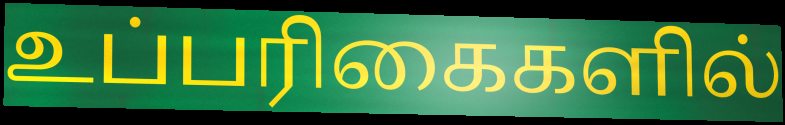
உப்பரிகைகளில்